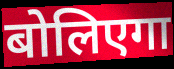
बोलिएगा